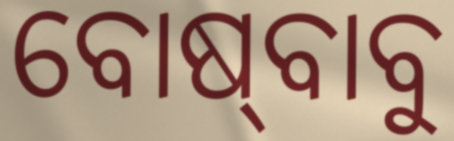
ବୋଷ୍‍ବାବୁ